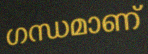
ഗന്ധമാണ്